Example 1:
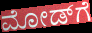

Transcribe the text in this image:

ಮೋಡ್‌ಗೆ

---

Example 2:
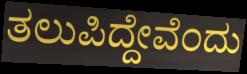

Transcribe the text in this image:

ತಲುಪಿದ್ದೇವೆಂದು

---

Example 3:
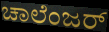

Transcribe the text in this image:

ಚಾಲೆಂಜರ್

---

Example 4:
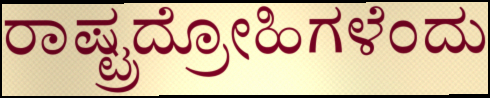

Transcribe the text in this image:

ರಾಷ್ಟ್ರದ್ರೋಹಿಗಳೆಂದು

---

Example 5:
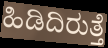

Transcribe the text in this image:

ಹಿಡಿದಿರುತ್ತೆ